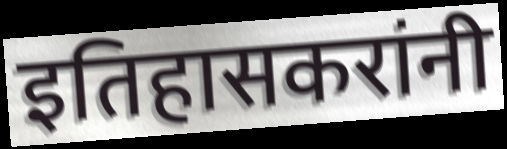
इतिहासकरांनी